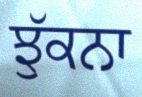
ਝੁੱਕਨਾ